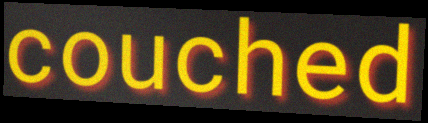
couched